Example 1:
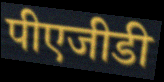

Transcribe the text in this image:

पीएजीडी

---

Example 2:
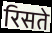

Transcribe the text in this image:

रिसते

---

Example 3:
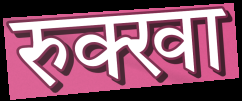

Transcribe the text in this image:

रुक्खा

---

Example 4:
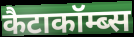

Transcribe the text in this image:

कैटाकॉम्ब्स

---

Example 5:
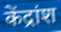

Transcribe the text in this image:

केंद्रांश